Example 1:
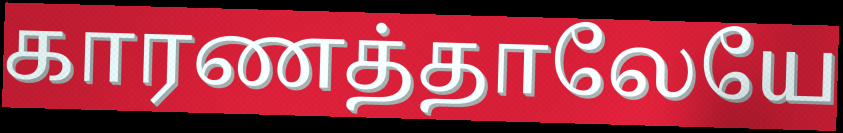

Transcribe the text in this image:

காரணத்தாலேயே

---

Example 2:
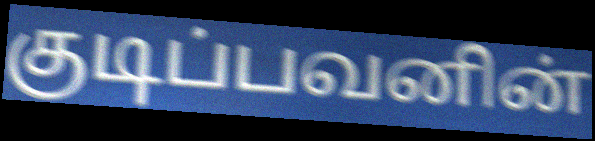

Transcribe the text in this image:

குடிப்பவனின்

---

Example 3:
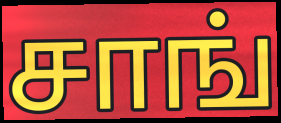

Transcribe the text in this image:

சாங்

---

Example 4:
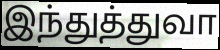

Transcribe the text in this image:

இந்துத்துவா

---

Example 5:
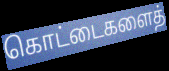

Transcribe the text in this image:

கொட்டைகளைத்